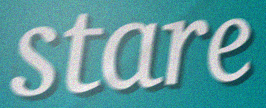
stare